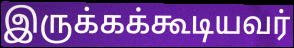
இருக்கக்கூடியவர்